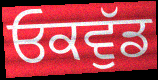
ਓਕਵੁੱਡ